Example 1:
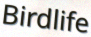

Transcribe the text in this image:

Birdlife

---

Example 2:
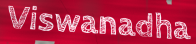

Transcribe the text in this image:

Viswanadha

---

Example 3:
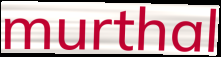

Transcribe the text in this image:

murthal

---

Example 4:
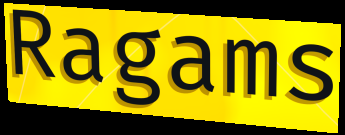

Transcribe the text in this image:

Ragams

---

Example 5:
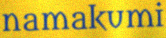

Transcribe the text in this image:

namakumi